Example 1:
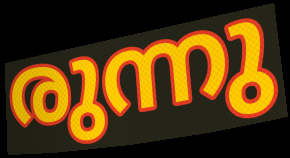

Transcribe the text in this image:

രുന്നു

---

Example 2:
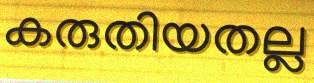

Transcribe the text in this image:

കരുതിയതല്ല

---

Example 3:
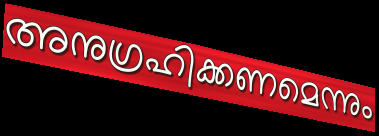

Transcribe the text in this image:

അനുഗ്രഹിക്കണമെന്നും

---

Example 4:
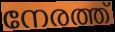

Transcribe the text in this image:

നേരത്ത്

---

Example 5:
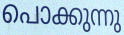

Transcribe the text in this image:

പൊക്കുന്നു